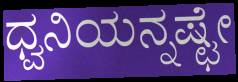
ಧ್ವನಿಯನ್ನಷ್ಟೇ